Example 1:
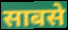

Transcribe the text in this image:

साबसे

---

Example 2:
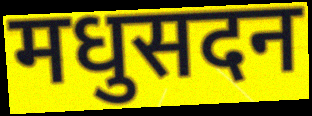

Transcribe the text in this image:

मधुसदन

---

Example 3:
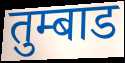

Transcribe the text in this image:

तुम्बाड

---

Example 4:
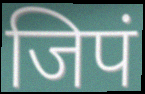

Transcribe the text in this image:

जिपं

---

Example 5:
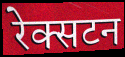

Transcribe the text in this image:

रेक्सटन